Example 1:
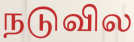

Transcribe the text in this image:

நடுவில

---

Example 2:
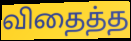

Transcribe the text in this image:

விதைத்த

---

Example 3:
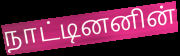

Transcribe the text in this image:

நாட்டினனின்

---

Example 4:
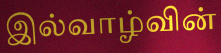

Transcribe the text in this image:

இல்வாழ்வின்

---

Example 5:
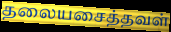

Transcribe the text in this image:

தலையசைத்தவள்